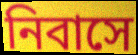
নিবাসে